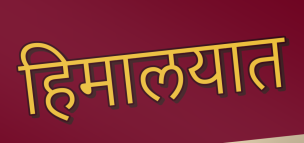
हिमालयात